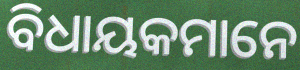
ବିଧାୟକମାନେ